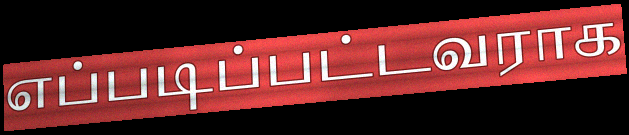
எப்படிப்பட்டவராக